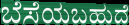
ಬೆಸೆಯಬಹುದೆ